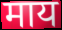
माय